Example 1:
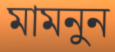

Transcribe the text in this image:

মামনুন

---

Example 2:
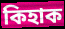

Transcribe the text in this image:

কিহাক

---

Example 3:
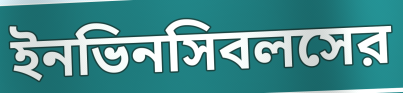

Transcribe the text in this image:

ইনভিনসিবলসের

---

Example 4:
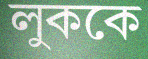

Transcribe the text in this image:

লুককে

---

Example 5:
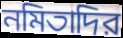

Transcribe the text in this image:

নমিতাদির